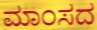
ಮಾಂಸದ